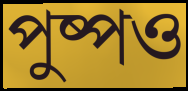
পুষ্পও